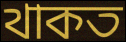
থাকত